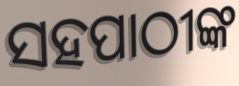
ସହପାଠୀଙ୍କ